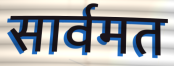
सार्वमत